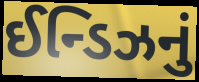
ઈન્ડિઝનું